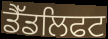
ਡੈੱਡਲਿਫਟ